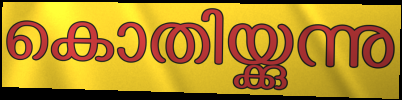
കൊതിയ്ക്കുന്നു